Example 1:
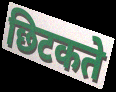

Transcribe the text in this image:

छिटकते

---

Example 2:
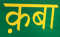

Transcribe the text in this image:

क़बा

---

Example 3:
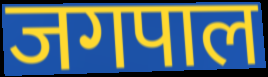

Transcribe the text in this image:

जगपाल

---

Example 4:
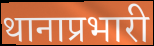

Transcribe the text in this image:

थानाप्रभारी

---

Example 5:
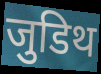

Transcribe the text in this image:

जुडिथ